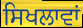
ਸਿਖਲਾਵਾਂ